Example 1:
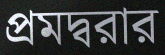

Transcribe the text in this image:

প্রমদ্বরার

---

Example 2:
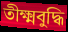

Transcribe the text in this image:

তীক্ষ্মবুদ্ধি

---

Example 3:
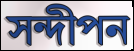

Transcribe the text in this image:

সন্দীপন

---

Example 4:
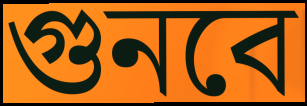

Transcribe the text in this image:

গুনবে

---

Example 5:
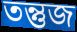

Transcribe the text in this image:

তন্তুজ